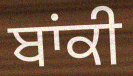
ਬਾਂਕੀ